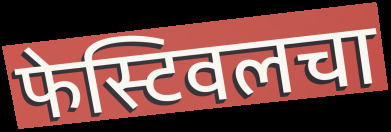
फेस्टिवलचा